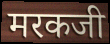
मरकजी